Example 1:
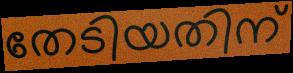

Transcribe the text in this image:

തേടിയതിന്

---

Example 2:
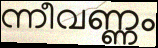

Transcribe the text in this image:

ന്നീവണ്ണം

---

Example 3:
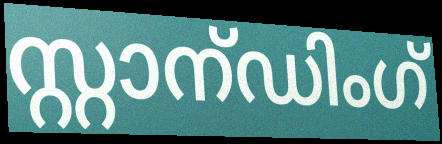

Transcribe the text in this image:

സ്റ്റാന്ഡിംഗ്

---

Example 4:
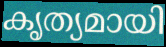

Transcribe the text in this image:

കൃത്യമായി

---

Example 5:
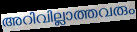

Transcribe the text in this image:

അറിവില്ലാത്തവരും